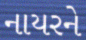
નાયરને